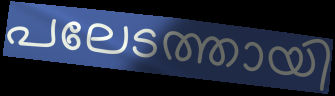
പലേടത്തായി